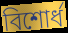
বিশোর্ধ